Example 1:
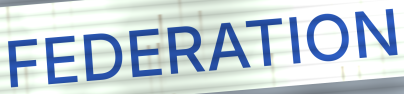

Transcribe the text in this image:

FEDERATION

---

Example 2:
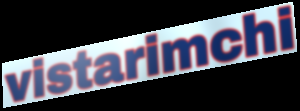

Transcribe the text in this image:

vistarimchi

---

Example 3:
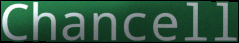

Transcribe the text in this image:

Chancell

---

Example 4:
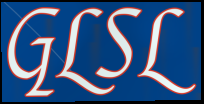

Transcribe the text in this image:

GLSL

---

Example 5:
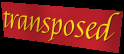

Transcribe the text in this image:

transposed